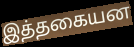
இத்தகையன